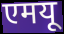
एमयू